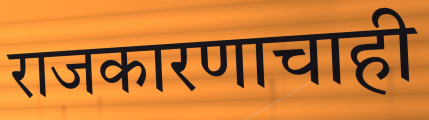
राजकारणाचाही